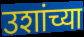
उशांच्या